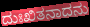
ದುಃಖಿತನಾದನು